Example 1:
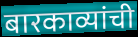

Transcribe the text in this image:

बारकाव्यांची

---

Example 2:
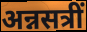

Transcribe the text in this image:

अन्नसत्रीं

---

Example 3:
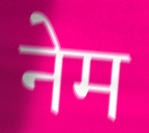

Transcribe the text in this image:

नेम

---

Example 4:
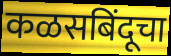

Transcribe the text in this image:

कळसबिंदूचा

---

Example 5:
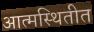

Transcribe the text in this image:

आत्मस्थितीत